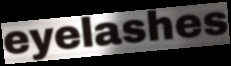
eyelashes